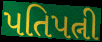
પતિપત્ની